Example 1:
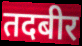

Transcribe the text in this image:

तदबीर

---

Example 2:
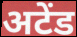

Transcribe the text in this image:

अटेंड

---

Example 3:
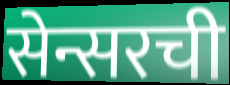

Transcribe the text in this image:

सेन्सरची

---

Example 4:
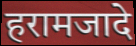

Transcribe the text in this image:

हरामजादे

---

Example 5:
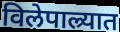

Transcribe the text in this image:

विलेपाल्र्यात